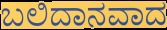
ಬಲಿದಾನವಾದ